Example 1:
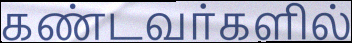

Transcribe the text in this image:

கண்டவர்களில்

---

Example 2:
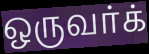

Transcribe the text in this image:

ஒருவர்க்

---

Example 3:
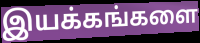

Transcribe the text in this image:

இயக்கங்களை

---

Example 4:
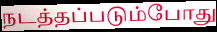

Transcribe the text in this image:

நடத்தப்படும்போது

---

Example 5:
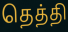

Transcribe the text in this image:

தெத்தி